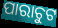
ପାରାଚୁଟ